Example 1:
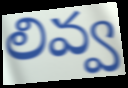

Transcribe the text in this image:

లివ్వ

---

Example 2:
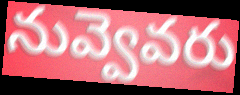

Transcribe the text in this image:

నువ్వెవరు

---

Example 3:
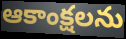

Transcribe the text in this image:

ఆకాంక్షలను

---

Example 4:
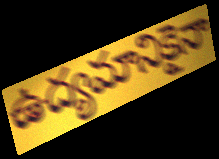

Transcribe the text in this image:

ఉద్యమానికైనా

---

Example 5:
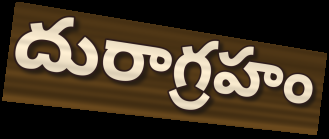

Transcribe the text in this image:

దురాగ్రహం